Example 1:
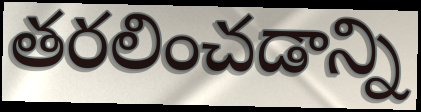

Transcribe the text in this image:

తరలించడాన్ని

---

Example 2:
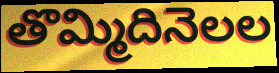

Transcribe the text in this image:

తొమ్మిదినెలల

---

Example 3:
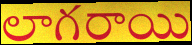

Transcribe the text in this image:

లాగరాయి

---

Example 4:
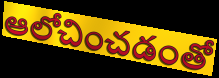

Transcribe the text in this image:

ఆలోచించడంతో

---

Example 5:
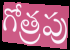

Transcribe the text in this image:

గోత్రపు